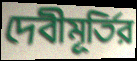
দেবীমূর্তির